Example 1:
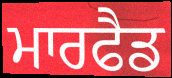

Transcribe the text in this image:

ਮਾਰਫੈਡ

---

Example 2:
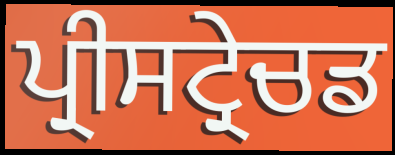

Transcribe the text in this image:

ਪ੍ਰੀਸਟ੍ਰੇਚਡ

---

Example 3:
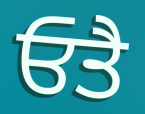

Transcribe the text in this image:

ਓਤੈ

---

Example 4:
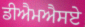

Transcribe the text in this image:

ਡੀਐਮਐਸਏ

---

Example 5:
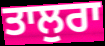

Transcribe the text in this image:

ਤਾਲੁਰਾ